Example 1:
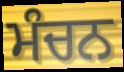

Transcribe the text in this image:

ਮੰਚਨ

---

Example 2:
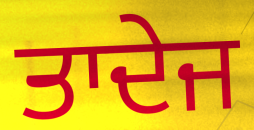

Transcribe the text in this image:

ਤਾਦੇਜ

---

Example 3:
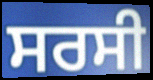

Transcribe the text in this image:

ਸਰਸੀ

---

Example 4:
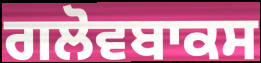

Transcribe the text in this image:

ਗਲੋਵਬਾਕਸ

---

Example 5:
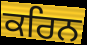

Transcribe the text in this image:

ਕਰਿਨ